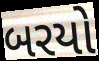
બરયો